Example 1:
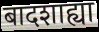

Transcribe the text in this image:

बादशाह्या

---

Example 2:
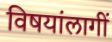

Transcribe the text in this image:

विषयांलागीं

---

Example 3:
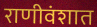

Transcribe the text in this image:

राणीवंशात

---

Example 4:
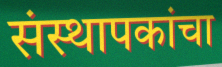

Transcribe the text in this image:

संस्थापकांचा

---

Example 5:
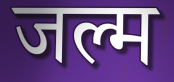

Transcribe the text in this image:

जल्म